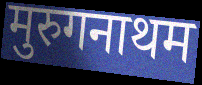
मुरुगनाथम